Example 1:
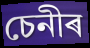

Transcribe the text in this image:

চেনীৰ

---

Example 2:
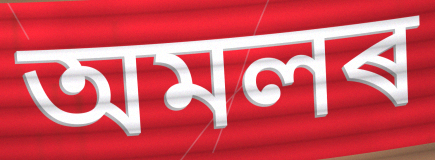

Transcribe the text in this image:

অমলৰ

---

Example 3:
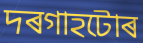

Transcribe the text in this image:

দৰগাহটোৰ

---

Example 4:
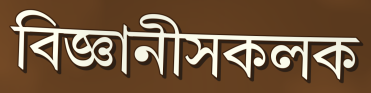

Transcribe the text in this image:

বিজ্ঞানীসকলক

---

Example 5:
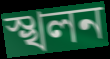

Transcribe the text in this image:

স্খলন